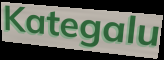
Kategalu